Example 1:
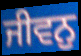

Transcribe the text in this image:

ਜੀਵਨੁ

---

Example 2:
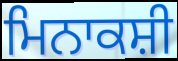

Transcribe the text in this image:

ਮਿਨਾਕਸ਼ੀ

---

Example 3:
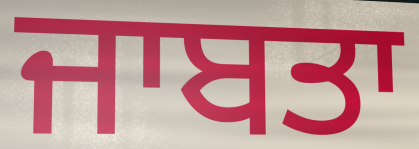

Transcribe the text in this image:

ਜਾਬਤਾ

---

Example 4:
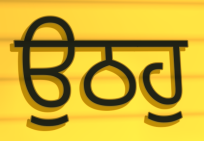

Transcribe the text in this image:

ਉਠਹੁ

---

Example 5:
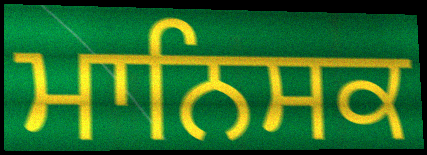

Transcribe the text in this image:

ਮਾਨਿਸਕ